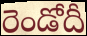
రెండోదీ